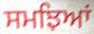
ਸਮਝਿਆਂ